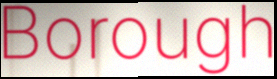
Borough